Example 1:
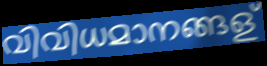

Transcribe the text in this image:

വിവിധമാനങ്ങള്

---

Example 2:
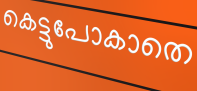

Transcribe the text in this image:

കെട്ടുപോകാതെ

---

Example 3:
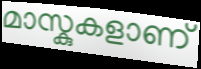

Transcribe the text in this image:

മാസ്കുകളാണ്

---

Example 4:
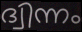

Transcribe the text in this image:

ദ്വിന്നം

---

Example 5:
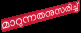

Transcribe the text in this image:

മാറുന്നതനുസരിച്ച്